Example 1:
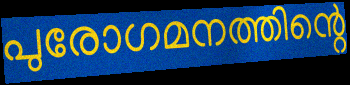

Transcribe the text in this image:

പുരോഗമനത്തിന്റെ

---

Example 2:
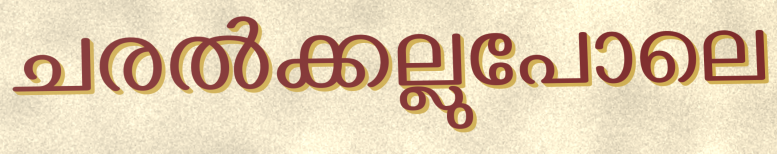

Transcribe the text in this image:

ചരൽക്കല്ലുപോലെ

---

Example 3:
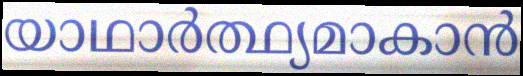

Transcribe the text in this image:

യാഥാർത്ഥ്യമാകാൻ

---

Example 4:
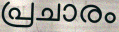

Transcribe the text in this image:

പ്രചാരം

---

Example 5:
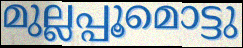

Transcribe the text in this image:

മുല്ലപ്പൂമൊട്ടു